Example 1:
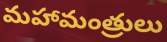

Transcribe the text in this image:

మహామంత్రులు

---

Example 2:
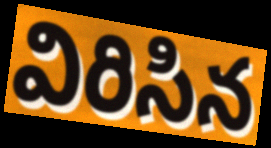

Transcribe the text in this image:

విరిసిన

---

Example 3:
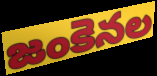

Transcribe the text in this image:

జంకెనల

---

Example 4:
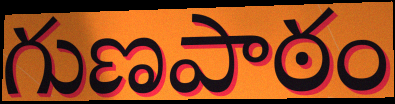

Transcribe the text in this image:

గుణపాఠం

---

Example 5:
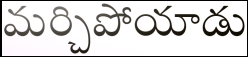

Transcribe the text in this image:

మర్చిపోయాడు